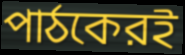
পাঠকেরই